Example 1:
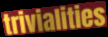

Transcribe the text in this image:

trivialities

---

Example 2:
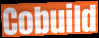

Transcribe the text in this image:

Cobuild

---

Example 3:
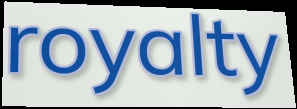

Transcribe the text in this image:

royalty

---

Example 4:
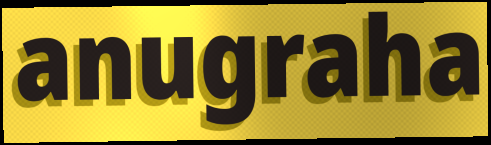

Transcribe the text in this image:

anugraha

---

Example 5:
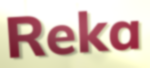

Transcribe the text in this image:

Reka